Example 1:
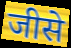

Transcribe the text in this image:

जीसे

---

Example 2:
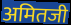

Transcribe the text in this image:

अमितजी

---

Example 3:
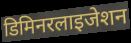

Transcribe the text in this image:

डिमिनरलाइजेशन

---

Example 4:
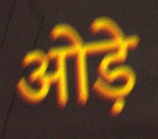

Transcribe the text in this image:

ओड़े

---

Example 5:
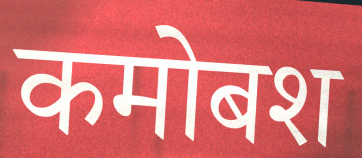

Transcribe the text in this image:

कमोबश